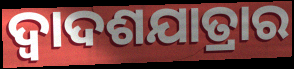
ଦ୍ୱାଦଶଯାତ୍ରାର